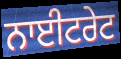
ਨਾਈਟਰੇਟ